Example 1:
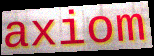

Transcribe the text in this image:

axiom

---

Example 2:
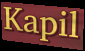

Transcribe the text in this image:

Kapil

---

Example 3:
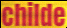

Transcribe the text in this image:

childe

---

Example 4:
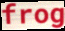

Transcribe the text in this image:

frog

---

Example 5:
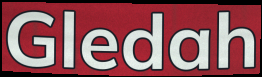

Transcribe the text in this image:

Gledah